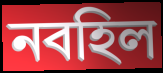
নবহিল